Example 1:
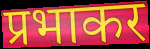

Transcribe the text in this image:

प्रभाकर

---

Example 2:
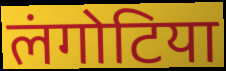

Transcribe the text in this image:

लंगोटिया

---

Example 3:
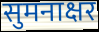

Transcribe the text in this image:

सुमनाक्षर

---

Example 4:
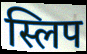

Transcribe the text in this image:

स्लिप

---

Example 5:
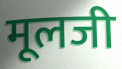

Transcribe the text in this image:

मूलजी